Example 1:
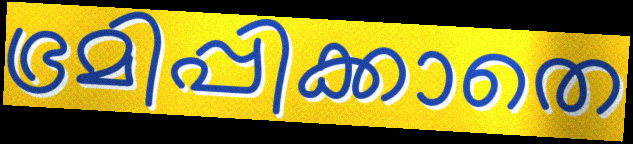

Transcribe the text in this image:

ഭ്രമിപ്പിക്കാതെ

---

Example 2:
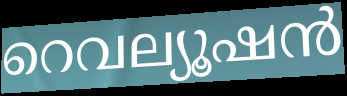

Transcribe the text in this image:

റെവല്യൂഷൻ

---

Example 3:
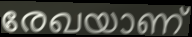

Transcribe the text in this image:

രേഖയാണ്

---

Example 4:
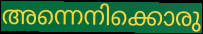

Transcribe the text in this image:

അന്നെനിക്കൊരു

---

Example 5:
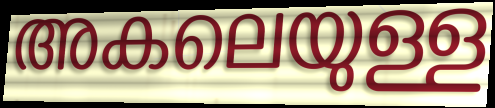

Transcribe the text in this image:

അകലെയുള്ള